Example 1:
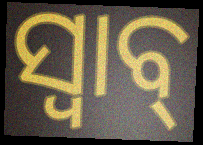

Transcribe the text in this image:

ସ୍ବାବ୍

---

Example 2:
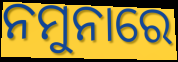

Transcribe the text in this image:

ନମୁନାରେ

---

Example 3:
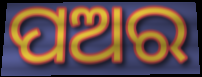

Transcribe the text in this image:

ପଅର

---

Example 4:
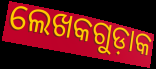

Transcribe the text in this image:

ଲେଖକଗୁଡ଼ାକ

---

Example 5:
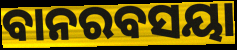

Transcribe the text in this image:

ବାନରବସୟା